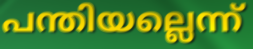
പന്തിയല്ലെന്ന്